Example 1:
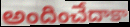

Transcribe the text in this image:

అందించేదాకా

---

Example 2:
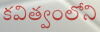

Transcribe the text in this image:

కవిత్వంలోని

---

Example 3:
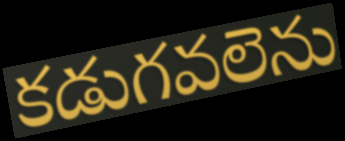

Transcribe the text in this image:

కడుగవలెను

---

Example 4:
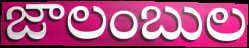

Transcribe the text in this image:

జాలంబుల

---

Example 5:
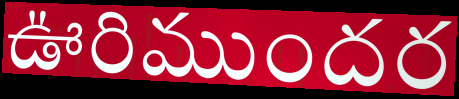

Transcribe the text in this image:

ఊరిముందర